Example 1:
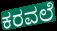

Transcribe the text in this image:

ಕರವಲೆ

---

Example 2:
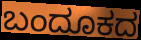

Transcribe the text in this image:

ಬಂದೂಕದ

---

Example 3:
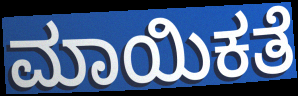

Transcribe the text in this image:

ಮಾಯಿಕತೆ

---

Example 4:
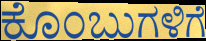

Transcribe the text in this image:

ಕೊಂಬುಗಳಿಗೆ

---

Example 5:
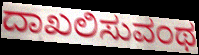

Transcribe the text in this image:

ದಾಖಲಿಸುವಂಥ